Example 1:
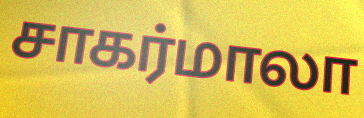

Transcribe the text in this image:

சாகர்மாலா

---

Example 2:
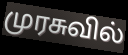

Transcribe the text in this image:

முரசுவில்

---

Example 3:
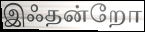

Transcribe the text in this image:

இஃதன்றோ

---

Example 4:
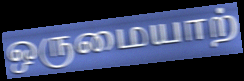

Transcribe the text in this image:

ஒருமையாற்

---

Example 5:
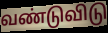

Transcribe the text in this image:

வண்டுவிடு